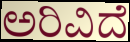
ಅರಿವಿದೆ